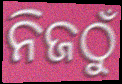
ନିଜଠୁଁ